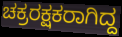
ಚಕ್ರರಕ್ಷಕರಾಗಿದ್ದ